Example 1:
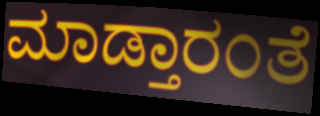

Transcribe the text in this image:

ಮಾಡ್ತಾರಂತೆ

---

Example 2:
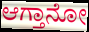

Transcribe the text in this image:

ಆಗ್ತಾನೋ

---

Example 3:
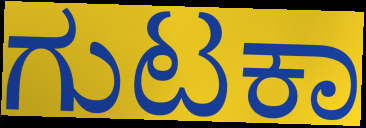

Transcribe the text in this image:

ಗುಟಕಾ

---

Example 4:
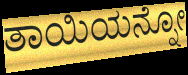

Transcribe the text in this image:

ತಾಯಿಯನ್ನೋ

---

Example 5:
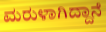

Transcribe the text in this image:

ಮರುಳಾಗಿದ್ದಾನೆ